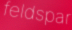
feldspar